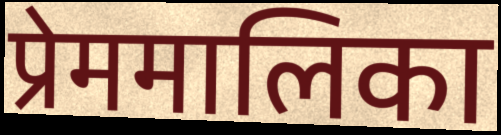
प्रेममालिका